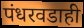
पंधरवडाही